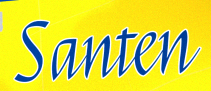
Santen